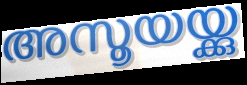
അസൂയയ്ക്കു